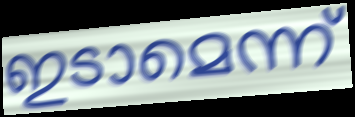
ഇടാമെന്ന്